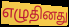
எழுதினது